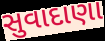
સુવાદાણા